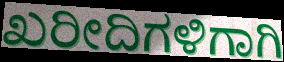
ಖರೀದಿಗಳಿಗಾಗಿ